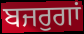
ਬਜਰੁਗਾਂ